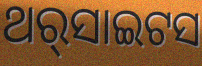
ଥର୍‌ସାଇଟସ